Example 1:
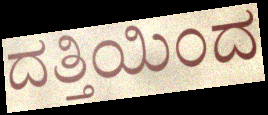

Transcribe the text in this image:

ದತ್ತಿಯಿಂದ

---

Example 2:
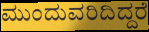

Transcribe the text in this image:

ಮುಂದುವರಿದಿದ್ದರೆ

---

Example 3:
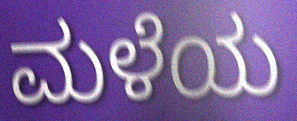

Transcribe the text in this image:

ಮಳೆಯ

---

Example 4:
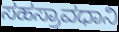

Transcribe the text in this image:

ಸಹಸ್ರಾವಧಾನಿ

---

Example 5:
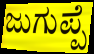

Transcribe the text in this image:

ಜುಗುಪ್ಪೆ